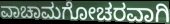
ವಾಚಾಮಗೋಚರವಾಗಿ